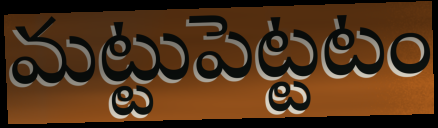
మట్టుపెట్టటం